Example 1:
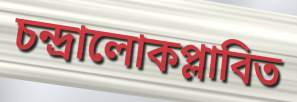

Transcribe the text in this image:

চন্দ্রালোকপ্লাবিত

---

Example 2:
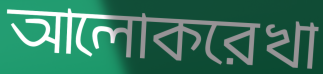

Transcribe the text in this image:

আলোকরেখা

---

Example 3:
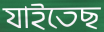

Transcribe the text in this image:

যাইতেছ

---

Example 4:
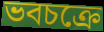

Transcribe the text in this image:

ভবচক্রে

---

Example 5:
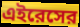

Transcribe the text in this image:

এইরেসের